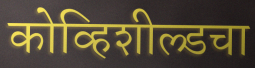
कोव्हिशील्डचा